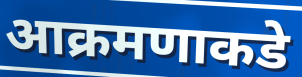
आक्रमणाकडे